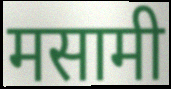
मसामी